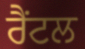
ਰੈਂਟਲ